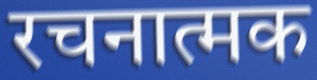
रचनात्मक